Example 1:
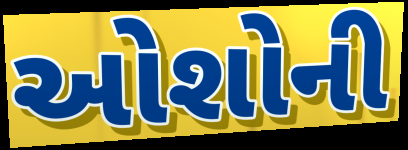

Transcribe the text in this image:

ઓશોની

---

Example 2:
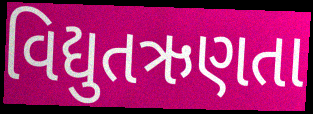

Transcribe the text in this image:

વિદ્યુતઋણતા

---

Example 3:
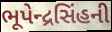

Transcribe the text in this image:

ભૂપેન્દ્રસિંહની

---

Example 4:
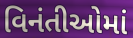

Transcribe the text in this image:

વિનંતીઓમાં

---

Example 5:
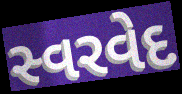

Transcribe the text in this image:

સ્વરવેદ